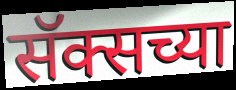
सॅक्सच्या